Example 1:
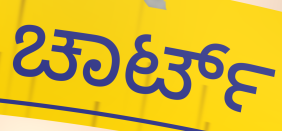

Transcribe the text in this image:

ಚಾರ್ಟ್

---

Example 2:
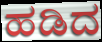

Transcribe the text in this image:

ಹಡಿದ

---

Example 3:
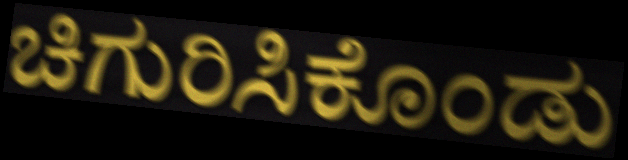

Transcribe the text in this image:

ಚಿಗುರಿಸಿಕೊಂಡು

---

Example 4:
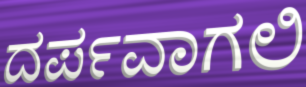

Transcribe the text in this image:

ದರ್ಪವಾಗಲಿ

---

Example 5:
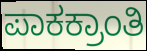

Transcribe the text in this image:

ಪಾಕಕ್ರಾಂತಿ